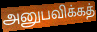
அனுபவிக்கத்